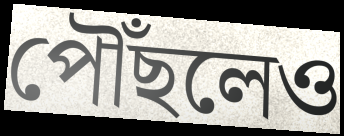
পৌঁছলেও